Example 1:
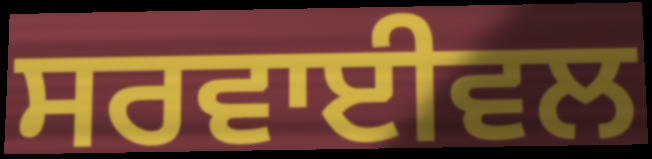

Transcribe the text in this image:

ਸਰਵਾਈਵਲ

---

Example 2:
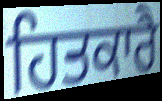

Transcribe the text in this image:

ਹਿਤਕਾਰੈ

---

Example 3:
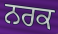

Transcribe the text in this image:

ਨਰਕ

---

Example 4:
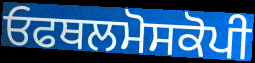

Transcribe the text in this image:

ਓਫਥਲਮੋਸਕੋਪੀ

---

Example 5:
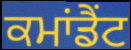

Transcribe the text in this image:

ਕਮਾਂਡੈਂਟ